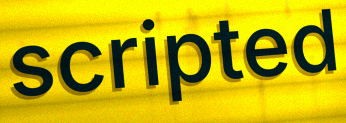
scripted